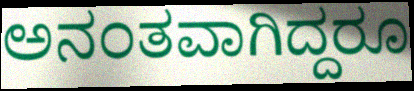
ಅನಂತವಾಗಿದ್ದರೂ